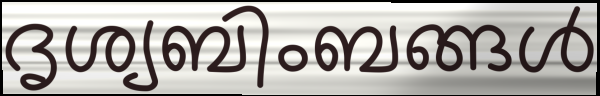
ദൃശ്യബിംബങ്ങൾ